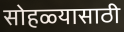
सोहळ्यासाठी